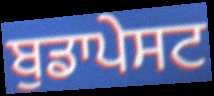
ਬੁਡਾਪੇਸਟ